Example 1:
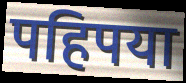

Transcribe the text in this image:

पहिपया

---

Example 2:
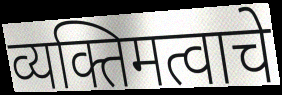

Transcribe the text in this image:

व्यक्तिमत्वाचे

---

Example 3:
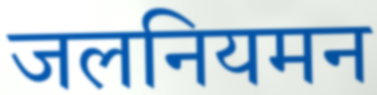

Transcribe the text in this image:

जलनियमन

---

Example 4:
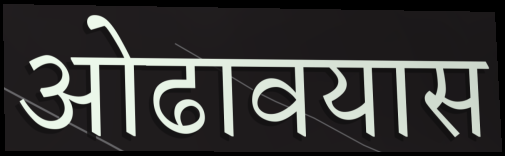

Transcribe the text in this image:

ओढावयास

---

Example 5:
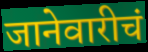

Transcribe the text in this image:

जानेवारीचं